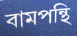
বামপন্থি